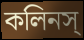
কলিনস্